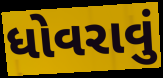
ધોવરાવું